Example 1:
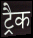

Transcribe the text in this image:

ट्रैक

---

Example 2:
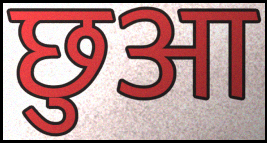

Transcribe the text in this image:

छुआ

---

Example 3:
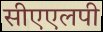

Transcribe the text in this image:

सीएएलपी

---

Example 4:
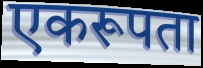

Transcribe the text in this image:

एकरूपता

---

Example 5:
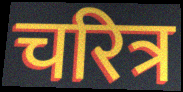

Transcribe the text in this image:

चरित्र